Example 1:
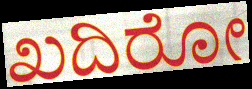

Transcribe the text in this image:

ಖದಿರೋ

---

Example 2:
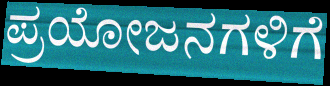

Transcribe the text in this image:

ಪ್ರಯೋಜನಗಳಿಗೆ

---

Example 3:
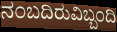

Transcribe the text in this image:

ನಂಬದಿರುವಿಬ್ಬಂದಿ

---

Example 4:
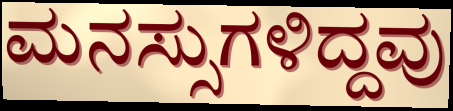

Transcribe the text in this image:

ಮನಸ್ಸುಗಳಿದ್ದವು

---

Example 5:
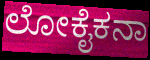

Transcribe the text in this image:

ಲೋಕೈಕನಾ